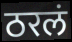
ठरलं